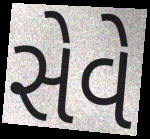
સેવે